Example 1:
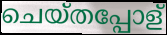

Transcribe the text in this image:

ചെയ്തപ്പോള്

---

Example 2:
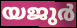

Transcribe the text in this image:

യജുർ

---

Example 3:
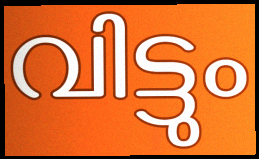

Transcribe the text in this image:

വിട്ടും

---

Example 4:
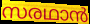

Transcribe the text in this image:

സരഥാൻ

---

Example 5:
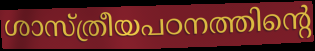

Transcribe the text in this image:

ശാസ്ത്രീയപഠനത്തിന്റെ